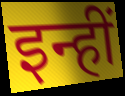
इन्‍हीं